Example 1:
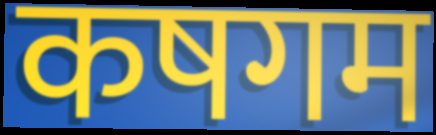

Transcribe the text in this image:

कषगम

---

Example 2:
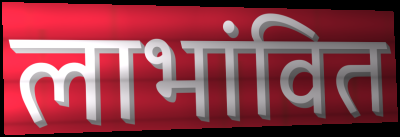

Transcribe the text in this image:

लाभांवित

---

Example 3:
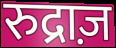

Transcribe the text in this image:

रुद्राज़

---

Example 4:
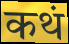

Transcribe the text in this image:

कथं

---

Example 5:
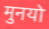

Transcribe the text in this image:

मुनयो